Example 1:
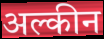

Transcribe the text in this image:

अल्कीन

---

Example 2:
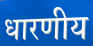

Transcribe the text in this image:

धारणीय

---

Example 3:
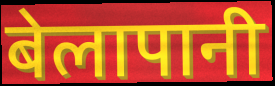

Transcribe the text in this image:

बेलापानी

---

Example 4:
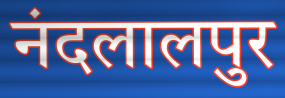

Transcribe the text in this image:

नंदलालपुर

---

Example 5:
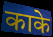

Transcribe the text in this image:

काके